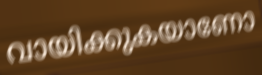
വായിക്കുകയാണോ